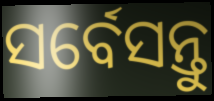
ସର୍ବେସନ୍ତୁ